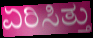
ಏರಿಸಿತ್ತು